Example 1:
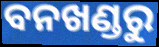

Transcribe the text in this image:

ବନଖଣ୍ଡରୁ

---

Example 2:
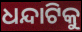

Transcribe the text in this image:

ଧନ୍ଦାଟିକୁ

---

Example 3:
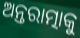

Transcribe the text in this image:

ଅନ୍ତରାତ୍ମାକୁ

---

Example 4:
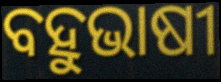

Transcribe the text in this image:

ବହୁଭାଷୀ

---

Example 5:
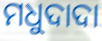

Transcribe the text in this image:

ମଧୁଦାଦା